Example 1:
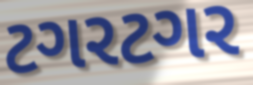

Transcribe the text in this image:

ટગરટગર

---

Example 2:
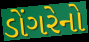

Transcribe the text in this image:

ડોંગરેનો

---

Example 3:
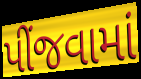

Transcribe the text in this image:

પીંજવામાં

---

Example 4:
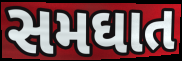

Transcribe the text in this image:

સમઘાત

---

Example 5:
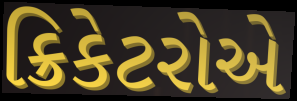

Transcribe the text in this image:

ક્રિકેટરોએ